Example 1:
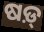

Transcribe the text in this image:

ଷଡ଼୍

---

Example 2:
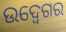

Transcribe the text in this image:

ଉଦ୍ବେଗର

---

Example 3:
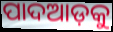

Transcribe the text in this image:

ପାଦଆଡ଼କୁ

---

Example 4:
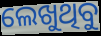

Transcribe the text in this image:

ଲେଖୁଥିବୁ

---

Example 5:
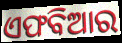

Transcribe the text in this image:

ଏଫବିଆର